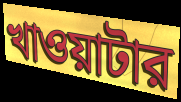
খাওয়াটার